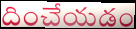
దించేయడం